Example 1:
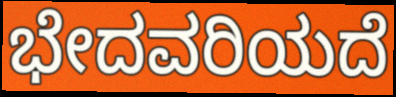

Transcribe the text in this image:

ಭೇದವರಿಯದೆ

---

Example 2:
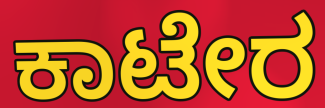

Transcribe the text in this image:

ಕಾಟೇರ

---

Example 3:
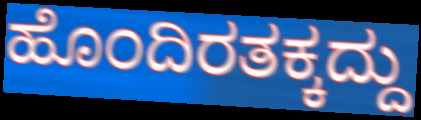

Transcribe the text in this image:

ಹೊಂದಿರತಕ್ಕದ್ದು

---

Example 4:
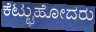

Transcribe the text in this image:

ಕೆಟ್ಟುಹೋದರು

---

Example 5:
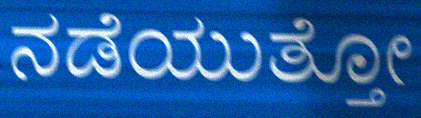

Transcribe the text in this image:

ನಡೆಯುತ್ತೋ